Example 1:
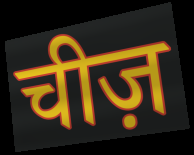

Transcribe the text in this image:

चीज़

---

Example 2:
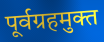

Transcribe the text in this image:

पूर्वग्रहमुक्त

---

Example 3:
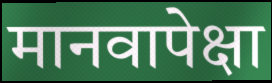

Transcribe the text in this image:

मानवापेक्षा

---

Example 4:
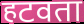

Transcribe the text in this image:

हटवता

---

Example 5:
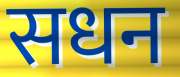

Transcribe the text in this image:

सधन